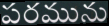
పరమును